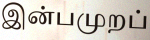
இன்பமுறப்